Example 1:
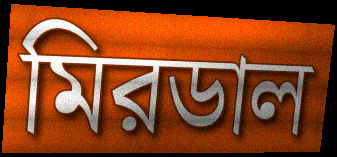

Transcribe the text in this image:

মিরডাল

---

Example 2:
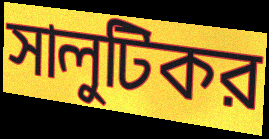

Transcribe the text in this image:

সালুটিকর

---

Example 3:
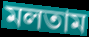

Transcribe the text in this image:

মলতাম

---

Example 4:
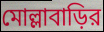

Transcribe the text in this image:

মোল্লাবাড়ির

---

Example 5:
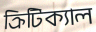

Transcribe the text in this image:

ক্রিটিক্যাল